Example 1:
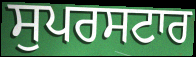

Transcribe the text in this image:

ਸੁਪਰਸਟਾਰ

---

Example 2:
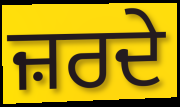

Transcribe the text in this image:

ਜ਼ਰਦੇ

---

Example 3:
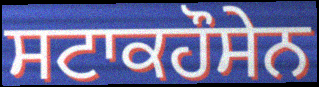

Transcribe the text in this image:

ਸਟਾਕਹੌਸੇਨ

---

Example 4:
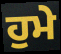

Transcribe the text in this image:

ਹੁਮੇ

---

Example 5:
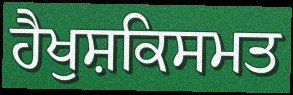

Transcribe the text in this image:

ਹੈਖੁਸ਼ਕਿਸਮਤ